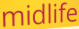
midlife